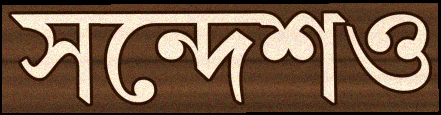
সন্দেশও